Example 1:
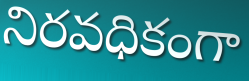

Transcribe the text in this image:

నిరవధికంగా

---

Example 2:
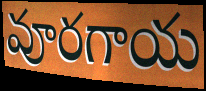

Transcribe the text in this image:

వూరగాయ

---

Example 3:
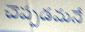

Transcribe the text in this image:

చెప్పడమనే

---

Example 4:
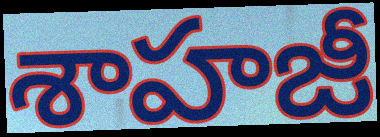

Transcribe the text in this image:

శాహజీ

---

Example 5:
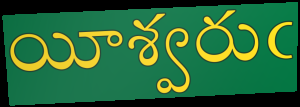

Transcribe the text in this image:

యీశ్వరుఁ